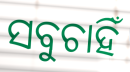
ସବୁଚାହିଁ